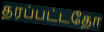
தரப்பட்டதோ